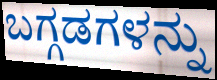
ಬಗ್ಗಡಗಳನ್ನು